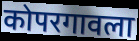
कोपरगावला